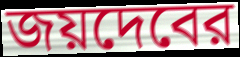
জয়দেবের